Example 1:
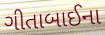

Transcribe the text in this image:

ગીતાબાઈના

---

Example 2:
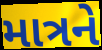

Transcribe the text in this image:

માત્રને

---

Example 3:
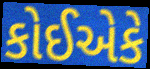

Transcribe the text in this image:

કોઈએકે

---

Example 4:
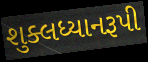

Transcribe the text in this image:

શુક્લધ્યાનરૂપી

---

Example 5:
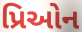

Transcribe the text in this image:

પ્રિઓન